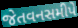
જેતવનસમીપે